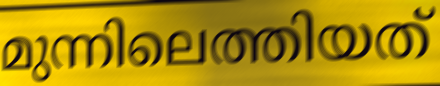
മുന്നിലെത്തിയത്